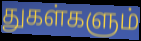
துகள்களும்